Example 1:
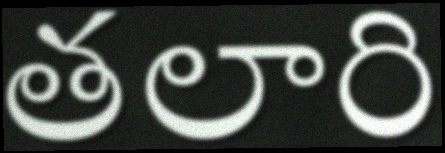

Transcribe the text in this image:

తలారి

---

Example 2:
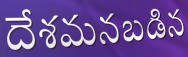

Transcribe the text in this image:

దేశమనబడిన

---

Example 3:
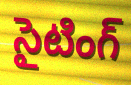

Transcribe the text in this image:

సైటింగ్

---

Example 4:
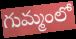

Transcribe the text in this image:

గుమ్మంలో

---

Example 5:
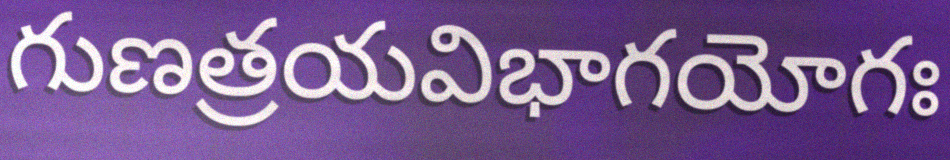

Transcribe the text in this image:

గుణత్రయవిభాగయోగః